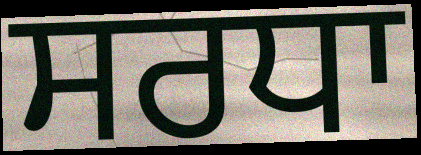
ਸਰਧਾ